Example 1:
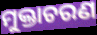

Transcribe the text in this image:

ମୁକ୍ତାଚରଣ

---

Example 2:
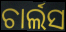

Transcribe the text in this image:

ଚାର୍ଲସ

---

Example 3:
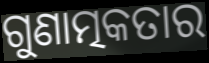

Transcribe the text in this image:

ଗୁଣାତ୍ମକତାର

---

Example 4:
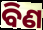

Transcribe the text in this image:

ବିଣ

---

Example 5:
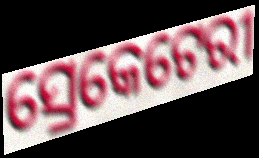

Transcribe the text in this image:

ସ୍ରେକେଟେରୀ